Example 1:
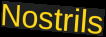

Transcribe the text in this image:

Nostrils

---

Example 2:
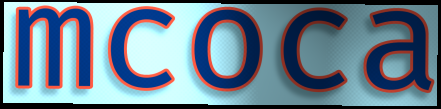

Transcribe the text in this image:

mcoca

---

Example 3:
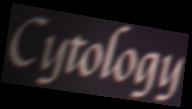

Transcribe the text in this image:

Cytology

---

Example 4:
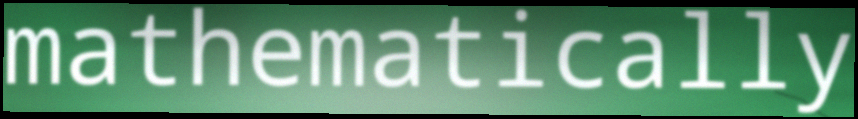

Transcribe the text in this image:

mathematically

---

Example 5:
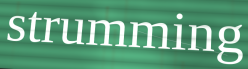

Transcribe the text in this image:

strumming